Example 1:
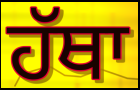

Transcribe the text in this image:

ਹੱਥਾ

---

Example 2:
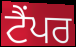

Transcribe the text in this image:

ਟੈਂਪਰ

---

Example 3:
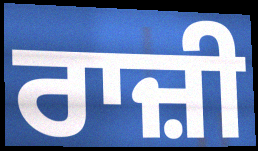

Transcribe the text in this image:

ਰਾਜ਼ੀ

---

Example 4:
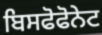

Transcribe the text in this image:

ਬਿਸਫੋਫੋਨੇਟ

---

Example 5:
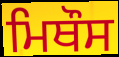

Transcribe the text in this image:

ਮਿਥੌਸ